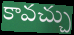
కావచ్చు